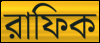
রাফিক